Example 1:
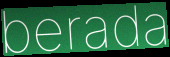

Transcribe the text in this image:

berada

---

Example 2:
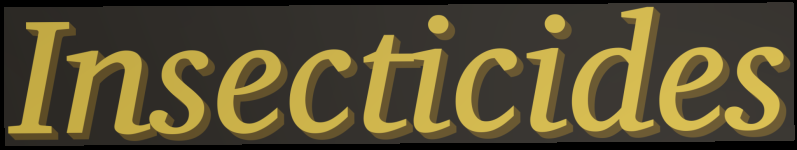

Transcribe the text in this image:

Insecticides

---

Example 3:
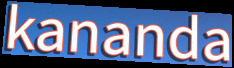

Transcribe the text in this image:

kananda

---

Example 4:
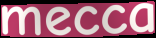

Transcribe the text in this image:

mecca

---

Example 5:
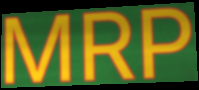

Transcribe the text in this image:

MRP